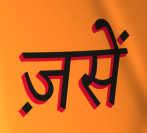
ज़सें